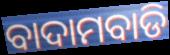
ବାଦାମବାଡି